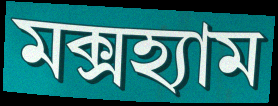
মক্সহ্যাম